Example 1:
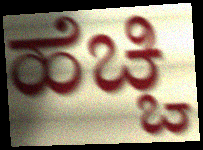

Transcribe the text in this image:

ಹೆಚ್ಚಿ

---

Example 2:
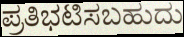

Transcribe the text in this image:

ಪ್ರತಿಭಟಿಸಬಹುದು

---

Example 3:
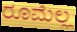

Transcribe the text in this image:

ರೂಮೆಲ್ಲ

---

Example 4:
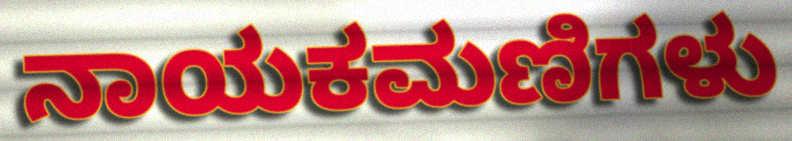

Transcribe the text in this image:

ನಾಯಕಮಣಿಗಳು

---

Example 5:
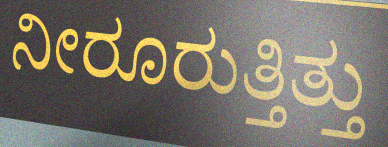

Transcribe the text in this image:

ನೀರೂರುತ್ತಿತ್ತು